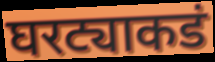
घरट्याकडं